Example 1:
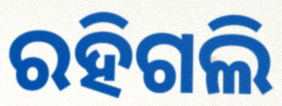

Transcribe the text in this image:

ରହିଗଲି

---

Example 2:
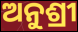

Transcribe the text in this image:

ଅନୁଶ୍ରୀ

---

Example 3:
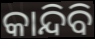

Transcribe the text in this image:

କାନ୍ଦିବି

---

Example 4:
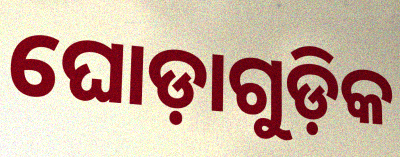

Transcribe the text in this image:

ଘୋଡ଼ାଗୁଡ଼ିକ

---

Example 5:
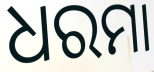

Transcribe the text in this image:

ଧରମା